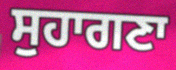
ਸੁਹਾਗਣਾ